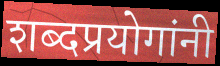
शब्दप्रयोगांनी